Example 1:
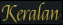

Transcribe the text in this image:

Keralan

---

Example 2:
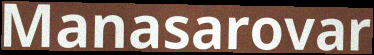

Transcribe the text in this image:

Manasarovar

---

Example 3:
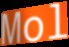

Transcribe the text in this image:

Mol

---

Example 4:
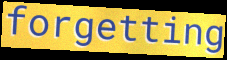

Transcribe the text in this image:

forgetting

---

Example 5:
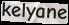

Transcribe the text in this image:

kelyane